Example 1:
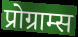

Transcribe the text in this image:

प्रोग्राम्स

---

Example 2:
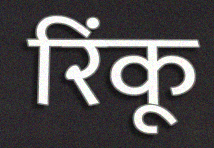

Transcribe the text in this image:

रिंकू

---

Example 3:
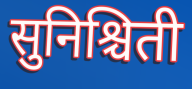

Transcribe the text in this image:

सुनिश्चिती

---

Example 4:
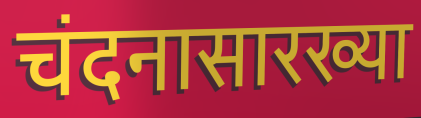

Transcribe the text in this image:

चंदनासारख्या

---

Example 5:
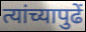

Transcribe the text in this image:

त्यांच्यापुढें